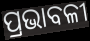
ପ୍ରଭାବଳୀ